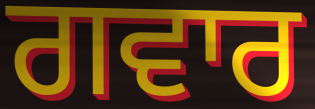
ਗਵਾਰ